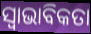
ସ୍ଵାଭାବିକତା